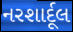
નરશાર્દૂલ